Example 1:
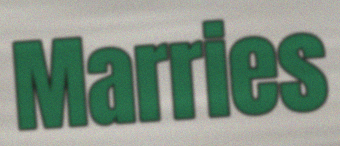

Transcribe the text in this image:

Marries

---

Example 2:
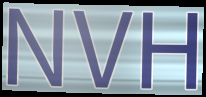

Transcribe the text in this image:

NVH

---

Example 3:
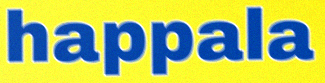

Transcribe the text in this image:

happala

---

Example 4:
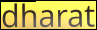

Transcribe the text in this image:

dharat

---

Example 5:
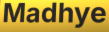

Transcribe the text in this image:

Madhye